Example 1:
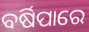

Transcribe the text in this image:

ବର୍ଷିପାରେ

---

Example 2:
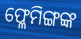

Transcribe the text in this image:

ଫ୍ଳେମିଙ୍ଗଙ୍କ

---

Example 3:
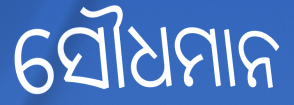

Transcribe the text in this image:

ସୌଧମାନ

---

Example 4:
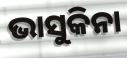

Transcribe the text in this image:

ଭାସୁକିନା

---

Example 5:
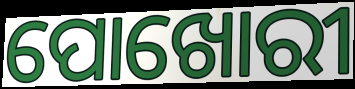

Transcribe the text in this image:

ପୋଖୋରୀ